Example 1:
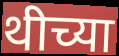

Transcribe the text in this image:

थीच्या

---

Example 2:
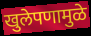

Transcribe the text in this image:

खुलेपणामुळे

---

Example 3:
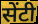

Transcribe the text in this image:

सेंटी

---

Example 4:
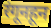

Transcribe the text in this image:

रंगूनहून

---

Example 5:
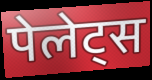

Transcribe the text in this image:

पेलेट्स